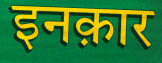
इनक़ार